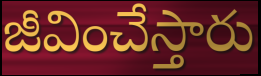
జీవించేస్తారు